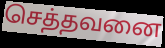
செத்தவனை